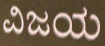
ವಿಜಯ